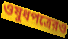
ওষুধপত্রেরও